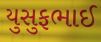
યુસુફભાઈ